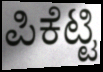
ಪಿಕೆಟ್ಟಿ